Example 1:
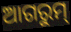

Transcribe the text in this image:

ଆଗରୁମ୍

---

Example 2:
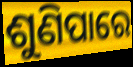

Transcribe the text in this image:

ଶୁଣିପାରେ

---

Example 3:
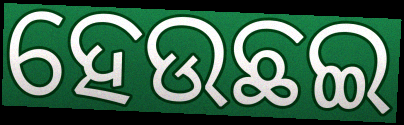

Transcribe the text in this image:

ହେଉଛଇ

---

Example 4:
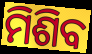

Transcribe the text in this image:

ମିଶିବ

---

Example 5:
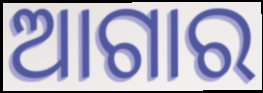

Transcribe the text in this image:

ଆଗାର